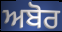
ਅਬੋਰ